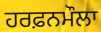
ਹਰਫ਼ਨਮੌਲਾ